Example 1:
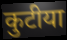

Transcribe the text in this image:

कुटीया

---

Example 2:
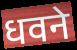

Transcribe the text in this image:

धवने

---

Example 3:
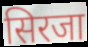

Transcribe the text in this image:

सिरजा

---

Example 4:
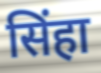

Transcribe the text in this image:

सिंहा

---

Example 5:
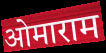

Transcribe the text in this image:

ओमाराम